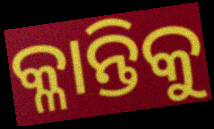
କ୍ଳାନ୍ତିକୁ